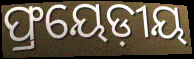
ଫ୍ରୟେଡ଼ୀୟ